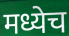
मध्येच